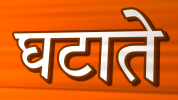
घटाते